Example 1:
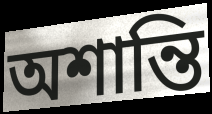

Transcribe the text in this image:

অশান্তি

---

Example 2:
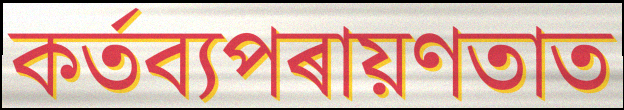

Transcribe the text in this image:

কৰ্তব্যপৰায়ণতাত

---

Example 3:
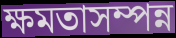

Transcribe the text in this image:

ক্ষমতাসম্পন্ন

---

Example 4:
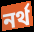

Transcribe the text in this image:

নৰ্থ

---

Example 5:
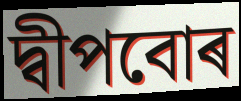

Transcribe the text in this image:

দ্বীপবোৰ